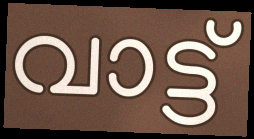
വാട്ട്